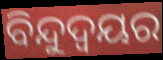
ବିନ୍ଦୁଦ୍ବୟର